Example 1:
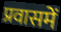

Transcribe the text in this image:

प्रवासमें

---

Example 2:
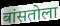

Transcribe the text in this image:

बांसतोला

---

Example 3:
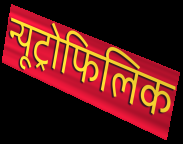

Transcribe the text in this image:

न्यूट्रोफिलिक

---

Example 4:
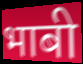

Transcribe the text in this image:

भाबी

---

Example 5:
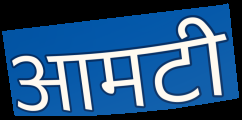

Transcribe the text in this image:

आमटी